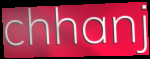
chhanj